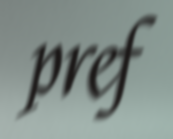
pref